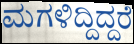
ಮಗಳಿದ್ದಿದ್ದರೆ